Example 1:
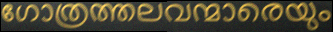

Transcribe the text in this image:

ഗോത്രത്തലവന്മാരെയും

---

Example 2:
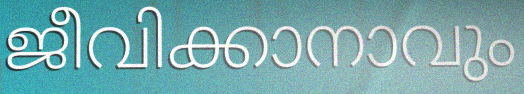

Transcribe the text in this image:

ജീവിക്കാനാവും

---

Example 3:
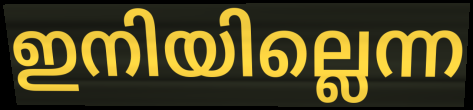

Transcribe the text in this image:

ഇനിയില്ലെന്ന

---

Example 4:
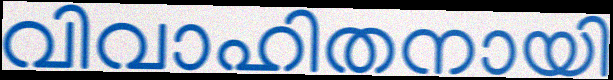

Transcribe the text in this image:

വിവാഹിതനായി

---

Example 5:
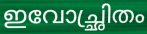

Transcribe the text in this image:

ഇവോച്ഛ്രിതം